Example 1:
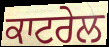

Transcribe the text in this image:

ਕਾਟਰੇਲ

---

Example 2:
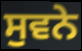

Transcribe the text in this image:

ਸੁਵਨੇ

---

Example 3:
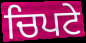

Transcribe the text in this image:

ਚਿਪਟੇ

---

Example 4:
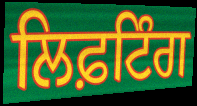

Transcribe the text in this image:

ਲਿਫ਼ਟਿੰਗ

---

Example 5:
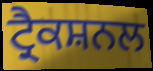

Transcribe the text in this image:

ਟ੍ਰੈਕਸ਼ਨਲ